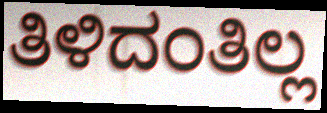
ತಿಳಿದಂತಿಲ್ಲ